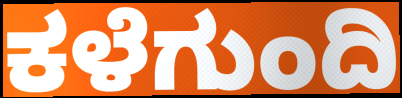
ಕಳೆಗುಂದಿ